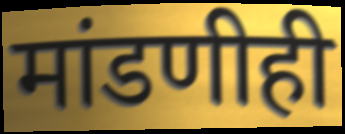
मांडणीही